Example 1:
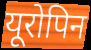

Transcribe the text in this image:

यूरोपिन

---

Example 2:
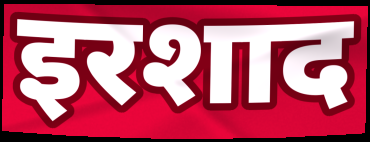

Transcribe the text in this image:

इरशाद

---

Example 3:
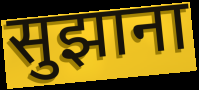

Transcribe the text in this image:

सुझाना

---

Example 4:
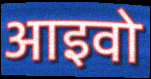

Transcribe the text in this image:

आइवो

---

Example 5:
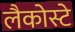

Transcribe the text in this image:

लैकोस्टे